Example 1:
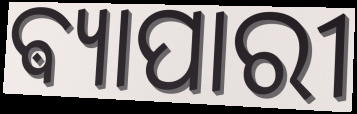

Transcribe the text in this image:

ଵ୍ୟାପାରୀ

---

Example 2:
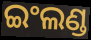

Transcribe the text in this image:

ଇଂଲଣ୍ଡ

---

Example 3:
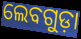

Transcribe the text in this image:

ଲେବଗୁଡ଼ା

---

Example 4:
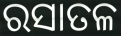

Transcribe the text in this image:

ରସାତଳ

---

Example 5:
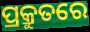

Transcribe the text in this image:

ପ୍ରକ୍ରୁତରେ